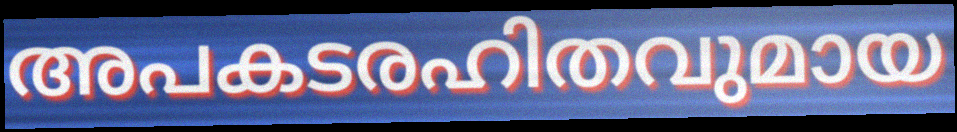
അപകടരഹിതവുമായ